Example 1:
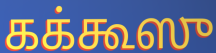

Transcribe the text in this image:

கக்கூஸு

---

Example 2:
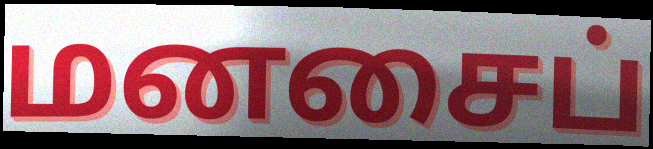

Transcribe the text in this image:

மனசைப்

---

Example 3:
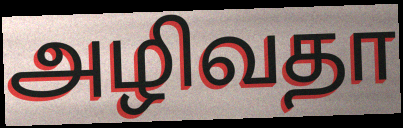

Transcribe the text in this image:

அழிவதா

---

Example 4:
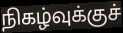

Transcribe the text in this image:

நிகழ்வுக்குச்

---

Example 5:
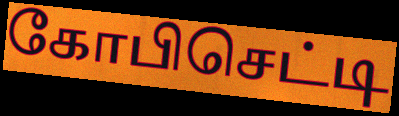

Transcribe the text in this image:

கோபிசெட்டி